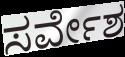
ಸರ್ವೇಶ